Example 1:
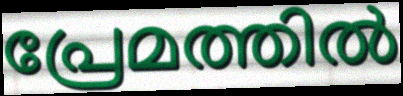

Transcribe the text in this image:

പ്രേമത്തിൽ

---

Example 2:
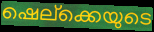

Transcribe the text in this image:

ഷെല്ക്കെയുടെ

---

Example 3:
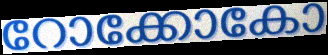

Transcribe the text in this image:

റോക്കോകോ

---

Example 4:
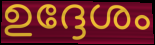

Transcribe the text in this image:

ഉദ്ദേശം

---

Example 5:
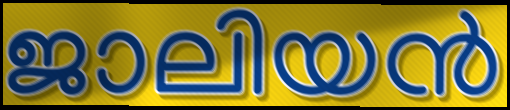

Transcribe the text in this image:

ജാലിയൻ